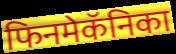
फिनमेकॅनिका